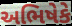
અભિષેકે